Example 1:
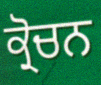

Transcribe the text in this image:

ਕ੍ਰੋਚਨ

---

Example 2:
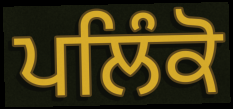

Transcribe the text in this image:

ਪਲਿੰਕੋ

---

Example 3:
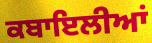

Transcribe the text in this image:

ਕਬਾਇਲੀਆਂ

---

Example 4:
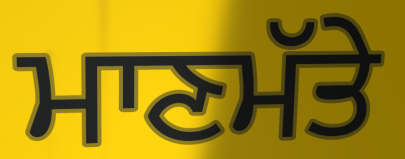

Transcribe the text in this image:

ਮਾਣਮੱਤੇ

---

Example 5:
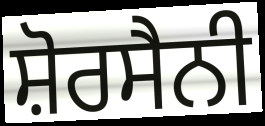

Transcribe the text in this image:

ਸ਼ੋਰਸੈਨੀ